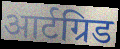
आर्टग्रिड